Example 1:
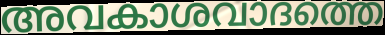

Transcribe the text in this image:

അവകാശവാദത്തെ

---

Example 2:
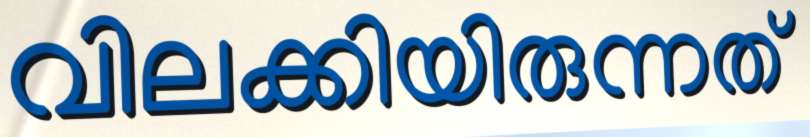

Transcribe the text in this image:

വിലക്കിയിരുന്നത്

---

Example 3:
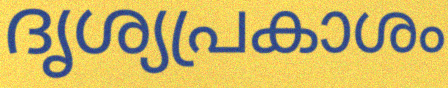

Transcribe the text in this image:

ദൃശ്യപ്രകാശം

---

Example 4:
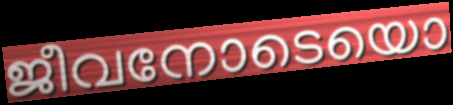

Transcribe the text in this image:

ജീവനോടെയൊ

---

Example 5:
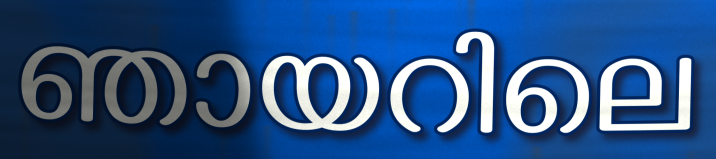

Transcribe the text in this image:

ഞായറിലെ